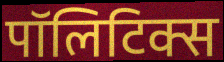
पॉलिटिक्स